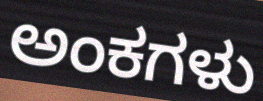
ಅಂಕಗಳು